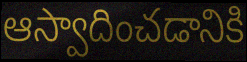
ఆస్వాదించడానికి